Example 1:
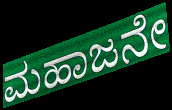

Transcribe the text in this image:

ಮಹಾಜನೇ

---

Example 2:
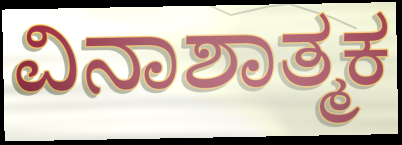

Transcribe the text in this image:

ವಿನಾಶಾತ್ಮಕ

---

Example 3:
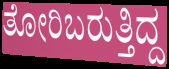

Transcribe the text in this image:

ತೋರಿಬರುತ್ತಿದ್ದ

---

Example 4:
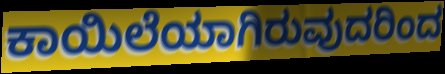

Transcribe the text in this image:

ಕಾಯಿಲೆಯಾಗಿರುವುದರಿಂದ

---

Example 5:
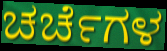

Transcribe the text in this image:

ಚರ್ಚೆಗಳ